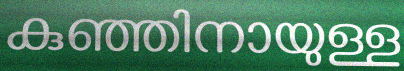
കുഞ്ഞിനായുള്ള